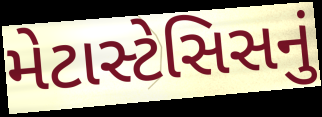
મેટાસ્ટેસિસનું